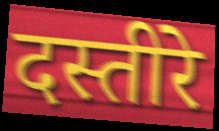
दस्तीरे